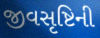
જીવસૃષ્ટિની